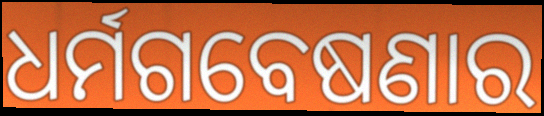
ଧର୍ମଗବେଷଣାର